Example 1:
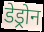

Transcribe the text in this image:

डेड्रोन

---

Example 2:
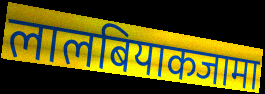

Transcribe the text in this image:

लालबियाकजामा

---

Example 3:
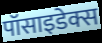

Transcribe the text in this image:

पॉसाइडेक्स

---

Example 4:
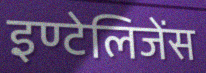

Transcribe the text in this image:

इण्टेलिजेंस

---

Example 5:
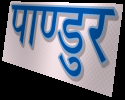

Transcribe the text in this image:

पाण्डुर